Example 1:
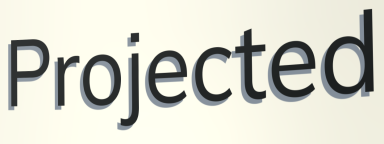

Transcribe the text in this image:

Projected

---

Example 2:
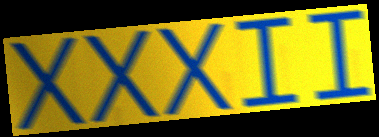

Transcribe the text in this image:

XXXII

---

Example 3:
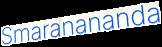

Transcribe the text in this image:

Smaranananda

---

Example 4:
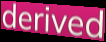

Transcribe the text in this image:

derived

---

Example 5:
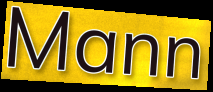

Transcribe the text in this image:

Mann